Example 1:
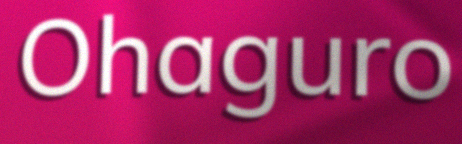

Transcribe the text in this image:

Ohaguro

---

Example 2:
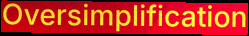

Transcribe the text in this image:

Oversimplification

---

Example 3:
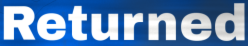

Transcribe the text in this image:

Returned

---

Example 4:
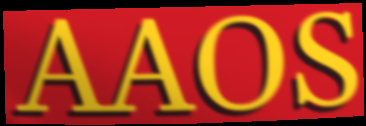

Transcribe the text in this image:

AAOS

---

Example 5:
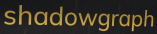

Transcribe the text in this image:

shadowgraph